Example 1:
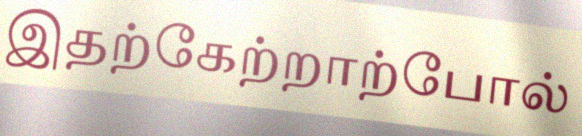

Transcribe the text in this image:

இதற்கேற்றாற்போல்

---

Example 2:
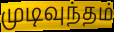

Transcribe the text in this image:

முடிவுந்தம்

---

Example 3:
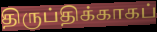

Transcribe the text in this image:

திருப்திக்காகப்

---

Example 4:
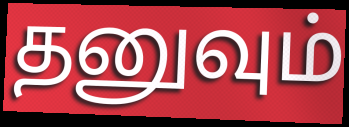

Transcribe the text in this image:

தனுவும்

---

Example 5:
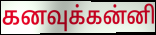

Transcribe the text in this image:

கனவுக்கன்னி